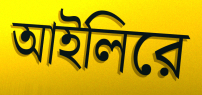
আইলিরে